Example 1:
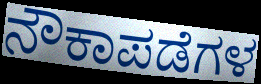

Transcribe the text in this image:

ನೌಕಾಪಡೆಗಳ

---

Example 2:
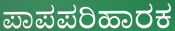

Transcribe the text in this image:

ಪಾಪಪರಿಹಾರಕ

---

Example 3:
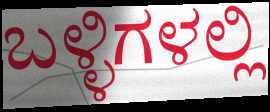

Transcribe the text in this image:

ಬಳ್ಳಿಗಳಲ್ಲಿ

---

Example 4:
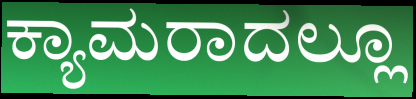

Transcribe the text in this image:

ಕ್ಯಾಮರಾದಲ್ಲೂ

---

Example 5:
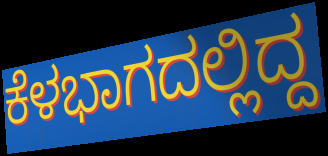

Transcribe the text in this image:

ಕೆಳಭಾಗದಲ್ಲಿದ್ದ